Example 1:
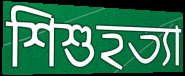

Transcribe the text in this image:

শিশুহত্যা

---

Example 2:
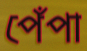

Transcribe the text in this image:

পেঁপা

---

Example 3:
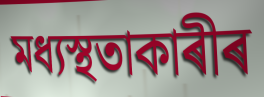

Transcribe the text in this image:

মধ্যস্থতাকাৰীৰ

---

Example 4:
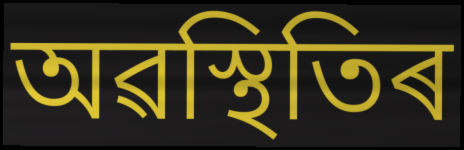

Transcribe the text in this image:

অৱস্থিতিৰ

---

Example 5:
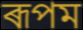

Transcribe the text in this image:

ৰূপম